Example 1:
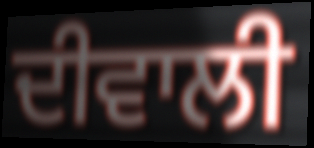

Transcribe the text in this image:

ਦੀਵਾਲੀ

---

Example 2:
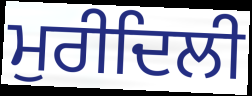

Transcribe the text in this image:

ਮੁਰੀਦਿਲੀ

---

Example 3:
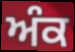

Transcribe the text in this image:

ਅੰਕ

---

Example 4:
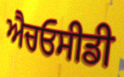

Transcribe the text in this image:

ਐਚਓਸੀਡੀ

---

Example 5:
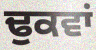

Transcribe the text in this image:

ਢੁਕਵਾਂ